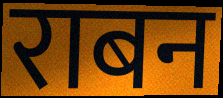
राबन